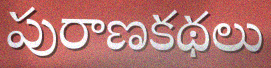
పురాణకథలు